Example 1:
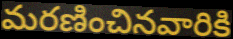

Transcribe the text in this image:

మరణించినవారికి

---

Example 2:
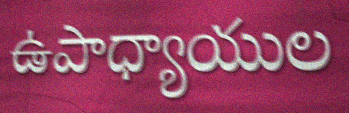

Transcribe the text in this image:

ఉపాధ్యాయుల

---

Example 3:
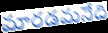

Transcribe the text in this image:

మారడమనేది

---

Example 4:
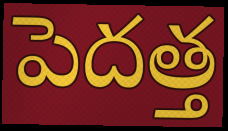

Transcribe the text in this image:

పెదత్త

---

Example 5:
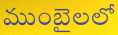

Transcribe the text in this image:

ముంబైలలో